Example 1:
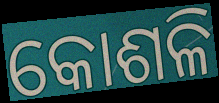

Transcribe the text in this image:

କୋଶଳି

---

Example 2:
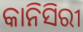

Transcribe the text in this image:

କାନିସିରୀ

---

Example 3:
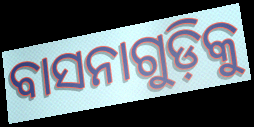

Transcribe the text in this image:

ବାସନାଗୁଡ଼ିକୁ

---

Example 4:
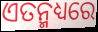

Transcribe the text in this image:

ଏତନ୍ମଧ୍ୟରେ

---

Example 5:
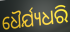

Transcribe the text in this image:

ଧୈର୍ଯ୍ୟଧରି